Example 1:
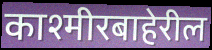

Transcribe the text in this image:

काश्मीरबाहेरील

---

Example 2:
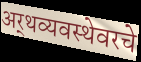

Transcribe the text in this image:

अर्थव्यवस्थेवरचे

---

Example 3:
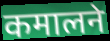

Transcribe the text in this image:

कमालने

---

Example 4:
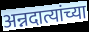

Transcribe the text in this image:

अन्नदात्यांच्या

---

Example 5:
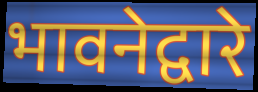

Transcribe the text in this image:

भावनेद्वारे